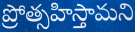
ప్రోత్సహిస్తామని